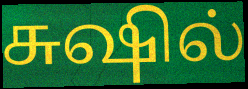
சுஷில்